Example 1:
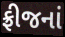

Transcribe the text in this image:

ફ્રીજનાં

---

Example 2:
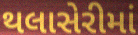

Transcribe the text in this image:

થલાસેરીમાં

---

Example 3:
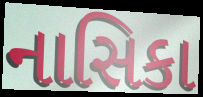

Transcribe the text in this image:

નાસિકા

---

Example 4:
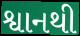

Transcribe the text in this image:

શ્વાનથી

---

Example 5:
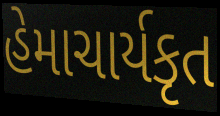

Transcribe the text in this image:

હેમાચાર્યકૃત